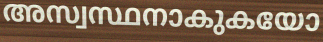
അസ്വസ്ഥനാകുകയോ